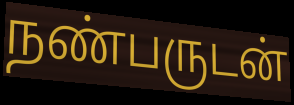
நண்பருடன்